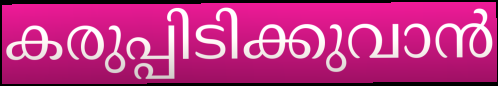
കരുപ്പിടിക്കുവാൻ